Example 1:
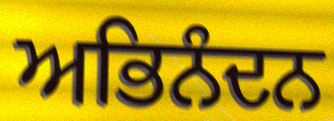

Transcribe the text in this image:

ਅਭਿਨੰਦਨ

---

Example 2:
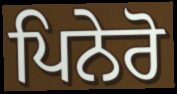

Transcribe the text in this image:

ਪਿਨੇਰੋ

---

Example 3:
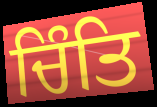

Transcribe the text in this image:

ਚਿੰਤਿ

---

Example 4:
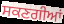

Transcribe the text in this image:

ਸਕਣਗੀਆਂ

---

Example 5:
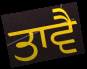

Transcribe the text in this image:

ਤਾਵੈ